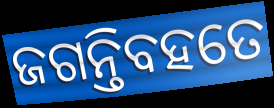
ଜଗନ୍ତିବହତେ